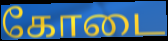
கோடை